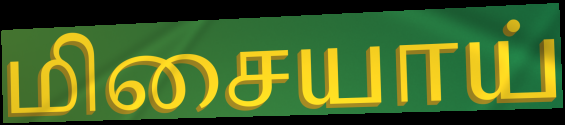
மிசையாய்